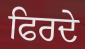
ਫਿਰਦੇ